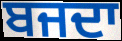
ਬਜਦਾ